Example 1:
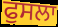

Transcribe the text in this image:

ਫੁਸਲਾ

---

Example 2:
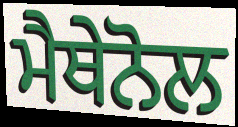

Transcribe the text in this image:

ਮੈਥੇਨੋਲ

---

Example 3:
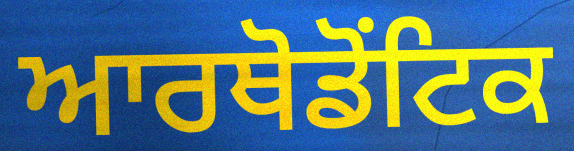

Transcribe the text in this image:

ਆਰਥੋਡੋਂਟਿਕ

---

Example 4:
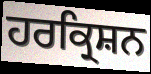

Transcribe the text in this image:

ਹਰਕ੍ਰਿਸ਼ਨ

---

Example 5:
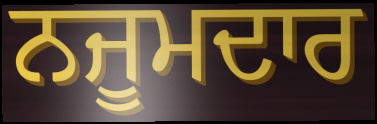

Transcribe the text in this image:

ਨਜੂਮਦਾਰ